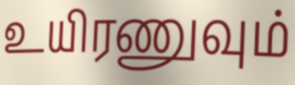
உயிரணுவும்